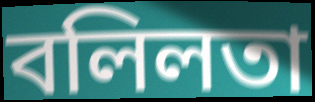
বলিলতা